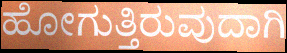
ಹೋಗುತ್ತಿರುವುದಾಗಿ